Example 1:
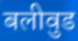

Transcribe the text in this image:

बलीवुड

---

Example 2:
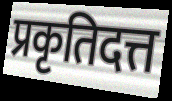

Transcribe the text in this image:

प्रकृतिदत्त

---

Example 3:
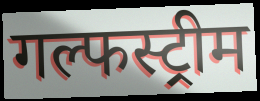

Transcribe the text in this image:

गल्फस्ट्रीम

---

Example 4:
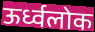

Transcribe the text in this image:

ऊर्ध्वलोक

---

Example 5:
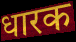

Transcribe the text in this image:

धारक